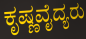
ಕೃಷ್ಣವೈದ್ಯರು